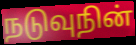
நடுவுநின்